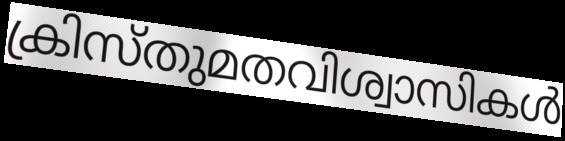
ക്രിസ്തുമതവിശ്വാസികൾ